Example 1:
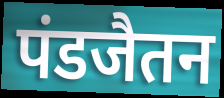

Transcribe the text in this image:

पंडजैतन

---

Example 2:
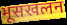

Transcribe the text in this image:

भूसखलन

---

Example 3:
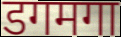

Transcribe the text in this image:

डगमगा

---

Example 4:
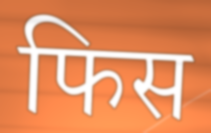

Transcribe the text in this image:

फिस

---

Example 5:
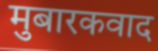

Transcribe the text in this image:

मुबारकवाद